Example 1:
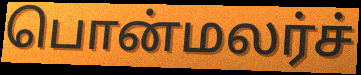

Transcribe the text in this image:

பொன்மலர்ச்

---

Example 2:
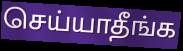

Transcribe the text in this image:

செய்யாதீங்க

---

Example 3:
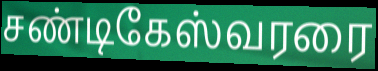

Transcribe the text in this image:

சண்டிகேஸ்வரரை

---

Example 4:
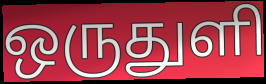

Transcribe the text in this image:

ஒருதுளி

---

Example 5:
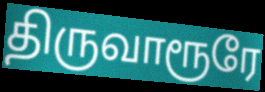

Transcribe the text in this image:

திருவாரூரே